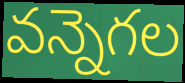
వన్నెగల